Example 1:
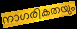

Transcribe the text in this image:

നാഗരികതയും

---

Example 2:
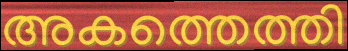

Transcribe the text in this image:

അകത്തെത്തി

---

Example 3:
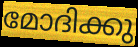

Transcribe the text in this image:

മോദിക്കു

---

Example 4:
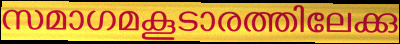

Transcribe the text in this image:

സമാഗമകൂടാരത്തിലേക്കു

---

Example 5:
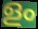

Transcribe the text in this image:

ളം